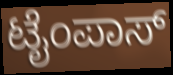
ಟೈಂಪಾಸ್